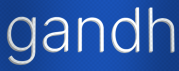
gandh